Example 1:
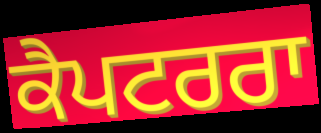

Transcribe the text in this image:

ਕੈਪਟਰਰਾ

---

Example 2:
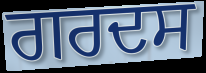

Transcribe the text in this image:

ਗਰਦਸ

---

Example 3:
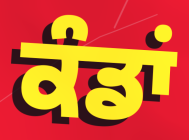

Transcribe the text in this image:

ਕੰਡਾਂ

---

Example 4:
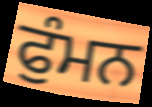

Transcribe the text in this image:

ਫੁੰਮਨ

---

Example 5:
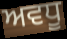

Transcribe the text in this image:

ਅਵਧੂ